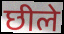
छीले